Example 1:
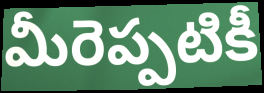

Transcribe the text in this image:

మీరెప్పటికీ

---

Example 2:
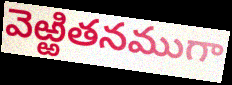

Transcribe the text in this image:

వెఱ్ఱితనముగా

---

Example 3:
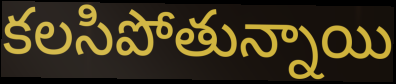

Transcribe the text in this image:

కలసిపోతున్నాయి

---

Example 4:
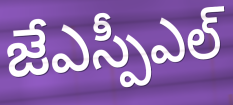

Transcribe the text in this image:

జేఎస్పీఎల్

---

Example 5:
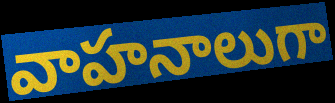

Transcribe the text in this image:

వాహనాలుగా